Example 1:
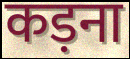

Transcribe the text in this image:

कड़ना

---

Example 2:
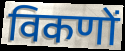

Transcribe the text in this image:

विकणों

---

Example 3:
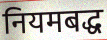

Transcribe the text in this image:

नियमबद्ध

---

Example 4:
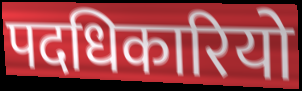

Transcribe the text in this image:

पदधिकारियो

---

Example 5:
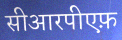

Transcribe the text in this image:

सीआरपीएफ़